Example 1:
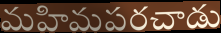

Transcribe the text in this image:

మహిమపరచాడు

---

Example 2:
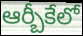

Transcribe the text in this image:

ఆర్బీకేలో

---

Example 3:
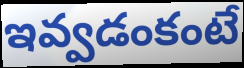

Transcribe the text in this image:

ఇవ్వడంకంటే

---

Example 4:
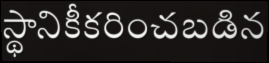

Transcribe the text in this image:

స్థానికీకరించబడిన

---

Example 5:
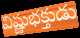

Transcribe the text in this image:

విష్ణుభక్తుడు